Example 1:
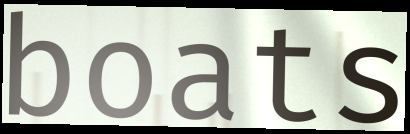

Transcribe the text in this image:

boats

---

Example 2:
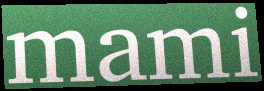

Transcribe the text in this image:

mami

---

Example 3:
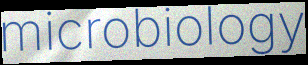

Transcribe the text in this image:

microbiology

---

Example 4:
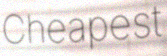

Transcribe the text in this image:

Cheapest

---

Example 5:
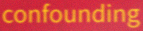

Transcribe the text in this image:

confounding